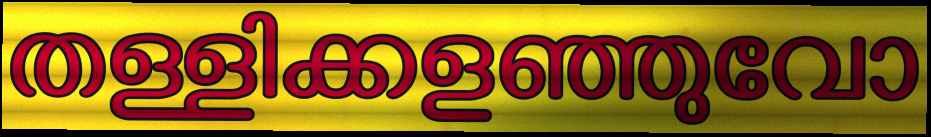
തള്ളിക്കളഞ്ഞുവോ